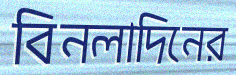
বিনলাদিনের